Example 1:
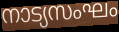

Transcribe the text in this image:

നാട്യസംഘം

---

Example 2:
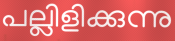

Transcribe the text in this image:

പല്ലിളിക്കുന്നു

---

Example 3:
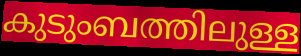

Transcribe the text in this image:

കുടുംബത്തിലുള്ള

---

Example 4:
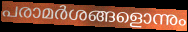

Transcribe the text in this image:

പരാമർശങ്ങളൊന്നും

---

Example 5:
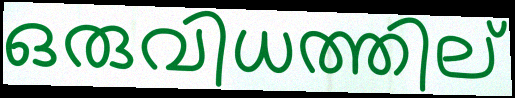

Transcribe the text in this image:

ഒരുവിധത്തില്